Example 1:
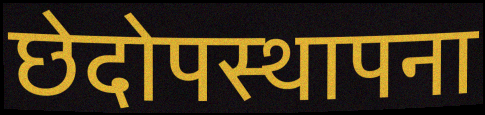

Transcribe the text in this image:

छेदोपस्थापना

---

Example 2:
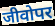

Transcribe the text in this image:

जीवोपर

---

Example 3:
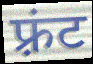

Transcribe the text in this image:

फ़्रंट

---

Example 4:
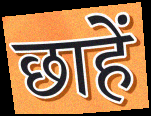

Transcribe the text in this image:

छाहें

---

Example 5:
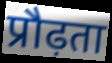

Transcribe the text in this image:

प्रौढ़ता